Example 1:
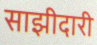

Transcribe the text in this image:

साझीदारी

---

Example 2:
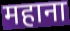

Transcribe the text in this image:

महाना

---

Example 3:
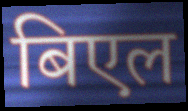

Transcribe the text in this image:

बिएल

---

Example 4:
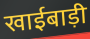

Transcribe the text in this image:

खाईबाड़ी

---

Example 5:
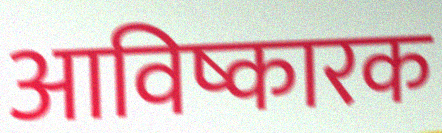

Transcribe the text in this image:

आविष्कारक